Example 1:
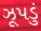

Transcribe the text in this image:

ઝૂપડું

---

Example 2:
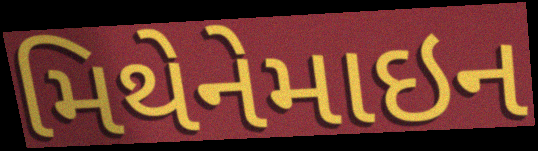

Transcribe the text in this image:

મિથેનેમાઇન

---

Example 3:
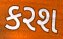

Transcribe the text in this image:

કરશ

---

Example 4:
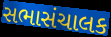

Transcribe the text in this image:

સભાસંચાલક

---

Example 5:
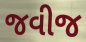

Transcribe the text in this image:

જવીજ